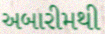
અબારીમથી